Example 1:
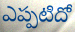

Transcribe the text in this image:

ఎప్పటిదో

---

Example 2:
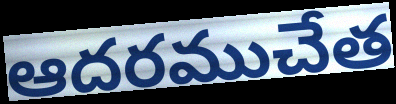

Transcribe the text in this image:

ఆదరముచేత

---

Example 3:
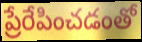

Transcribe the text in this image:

ప్రేరేపించడంతో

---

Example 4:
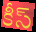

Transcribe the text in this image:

కీస్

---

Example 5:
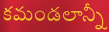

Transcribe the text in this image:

కమండలాన్నీ